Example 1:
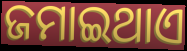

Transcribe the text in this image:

ଜମାଇଥାଏ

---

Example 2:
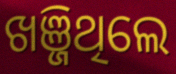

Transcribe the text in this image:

ଖଞ୍ଜିଥିଲେ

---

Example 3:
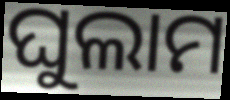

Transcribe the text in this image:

ଘୁଲାମ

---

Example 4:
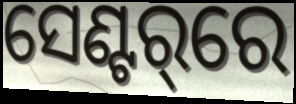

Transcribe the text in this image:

ସେଣ୍ଟର୍‌ରେ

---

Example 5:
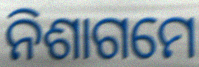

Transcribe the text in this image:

ନିଶାଗମେ